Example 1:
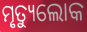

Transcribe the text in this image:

ମୃତ୍ୟୁଲୋକ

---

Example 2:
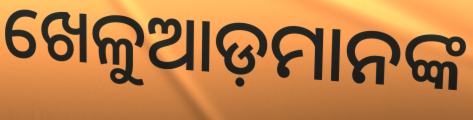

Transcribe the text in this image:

ଖେଳୁଆଡ଼ମାନଙ୍କ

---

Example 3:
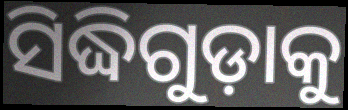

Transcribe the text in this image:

ସିଦ୍ଧିଗୁଡ଼ାକୁ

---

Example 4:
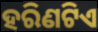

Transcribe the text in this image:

ହରିଣଟିଏ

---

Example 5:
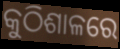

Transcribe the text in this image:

କୁଠିଶାଳରେ